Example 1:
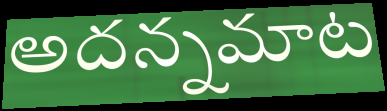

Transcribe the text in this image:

అదన్నమాట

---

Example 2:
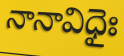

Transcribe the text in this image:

నానావిధైః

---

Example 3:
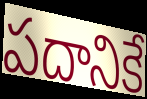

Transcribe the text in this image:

పదానికే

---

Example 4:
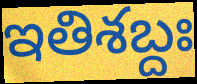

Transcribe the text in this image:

ఇతిశబ్దః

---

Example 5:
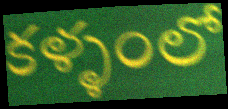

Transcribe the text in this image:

కళ్ళంలో